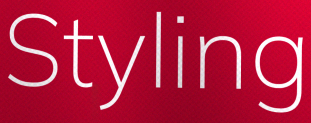
Styling